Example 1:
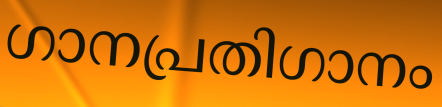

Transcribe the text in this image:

ഗാനപ്രതിഗാനം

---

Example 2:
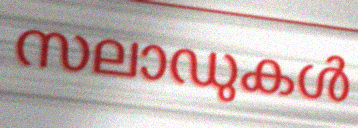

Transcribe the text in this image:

സലാഡുകൾ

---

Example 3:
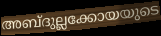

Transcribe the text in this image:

അബ്ദുല്ലക്കോയയുടെ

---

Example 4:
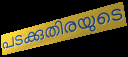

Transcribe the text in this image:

പടക്കുതിരയുടെ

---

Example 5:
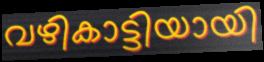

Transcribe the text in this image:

വഴികാട്ടിയായി